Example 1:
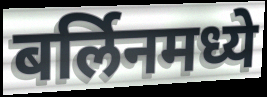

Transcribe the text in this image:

बर्लिनमध्ये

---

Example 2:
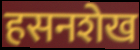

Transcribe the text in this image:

हसनशेख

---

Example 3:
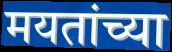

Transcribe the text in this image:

मयतांच्या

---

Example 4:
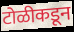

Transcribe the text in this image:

टोळीकडून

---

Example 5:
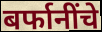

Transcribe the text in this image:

बर्फानींचे